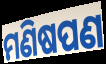
ମଣିଷପଣ